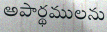
అపార్థములను